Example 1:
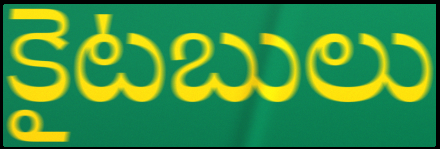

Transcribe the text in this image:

కైటబులు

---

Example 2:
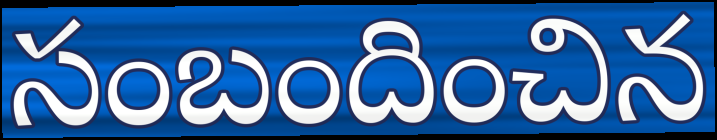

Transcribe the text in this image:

సంబందించిన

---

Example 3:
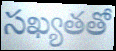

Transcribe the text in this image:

సఖ్యతతో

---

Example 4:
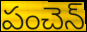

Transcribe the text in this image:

పంచెన్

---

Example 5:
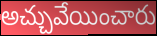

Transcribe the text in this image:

అచ్చువేయించారు